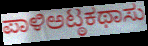
ಪಾಳಿಅಟ್ಠಕಥಾಸು